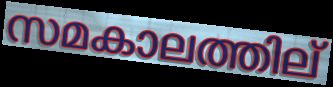
സമകാലത്തില്